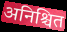
अनिश्चित